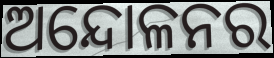
ଅନ୍ଦୋଳନର